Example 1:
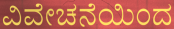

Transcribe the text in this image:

ವಿವೇಚನೆಯಿಂದ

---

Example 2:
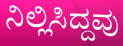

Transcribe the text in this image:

ನಿಲ್ಲಿಸಿದ್ದವು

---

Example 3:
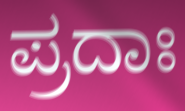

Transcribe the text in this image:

ಪ್ರದಾಃ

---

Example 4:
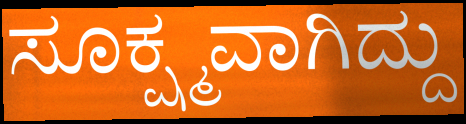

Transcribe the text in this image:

ಸೂಕ್ಷ್ಮವಾಗಿದ್ದು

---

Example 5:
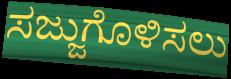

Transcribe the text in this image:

ಸಜ್ಜುಗೊಳಿಸಲು